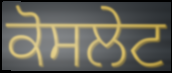
ਕੋਸਲੇਟ